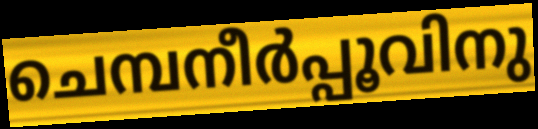
ചെമ്പനീർപ്പൂവിനു